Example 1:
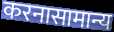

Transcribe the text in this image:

करनासामान्य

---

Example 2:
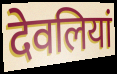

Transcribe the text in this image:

देवलियां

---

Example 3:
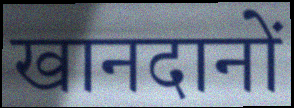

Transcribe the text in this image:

खानदानों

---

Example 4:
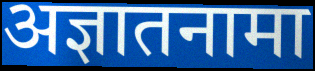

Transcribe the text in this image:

अज्ञातनामा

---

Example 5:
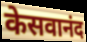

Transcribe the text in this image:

केसवानंद